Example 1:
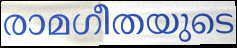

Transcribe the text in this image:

രാമഗീതയുടെ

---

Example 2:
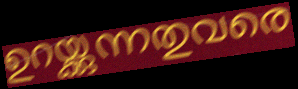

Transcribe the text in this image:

ഉറയ്ക്കുന്നതുവരെ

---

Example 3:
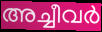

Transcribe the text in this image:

അച്ചീവർ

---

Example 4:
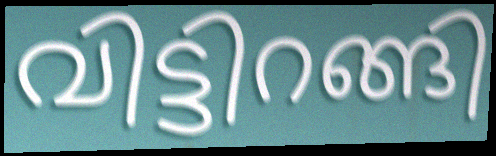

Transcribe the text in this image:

വിട്ടിറങ്ങി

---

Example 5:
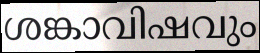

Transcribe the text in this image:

ശങ്കാവിഷവും